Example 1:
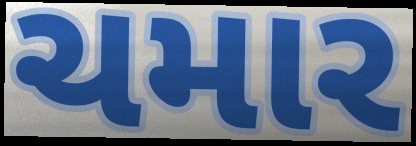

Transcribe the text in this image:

ચમાર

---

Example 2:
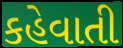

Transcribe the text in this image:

કહેવાતી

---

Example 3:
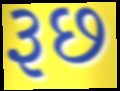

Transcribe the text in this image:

રૂછ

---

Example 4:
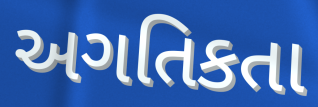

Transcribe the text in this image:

અગતિકતા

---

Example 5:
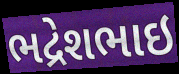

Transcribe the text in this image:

ભદ્રેશભાઇ